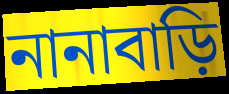
নানাবাড়ি